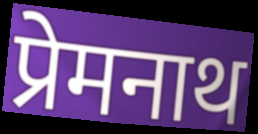
प्रेमनाथ